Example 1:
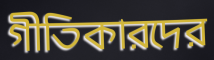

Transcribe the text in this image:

গীতিকারদের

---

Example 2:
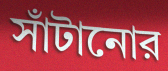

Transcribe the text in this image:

সাঁটানোর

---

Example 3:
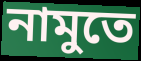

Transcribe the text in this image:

নামুতে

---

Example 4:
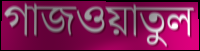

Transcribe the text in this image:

গাজওয়াতুল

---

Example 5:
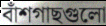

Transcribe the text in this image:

বাঁশগাছগুলো